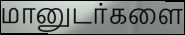
மானுடர்களை